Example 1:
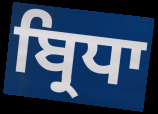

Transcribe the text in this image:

ਬ੍ਰਿਧਾ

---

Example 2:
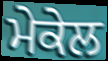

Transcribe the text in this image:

ਮੇਕੇਲ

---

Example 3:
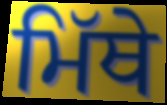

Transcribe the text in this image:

ਮਿੱਥੇ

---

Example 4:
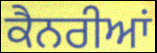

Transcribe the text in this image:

ਕੈਨਰੀਆਂ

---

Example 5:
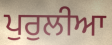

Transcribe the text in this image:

ਪੁਰੁਲੀਆ